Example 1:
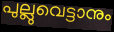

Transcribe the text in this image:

പുല്ലുവെട്ടാനും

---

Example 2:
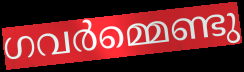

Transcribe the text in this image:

ഗവർമ്മെണ്ടു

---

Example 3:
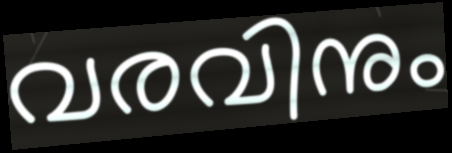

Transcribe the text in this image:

വരവിനും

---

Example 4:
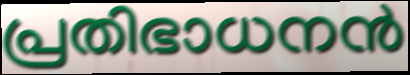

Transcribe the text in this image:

പ്രതിഭാധനൻ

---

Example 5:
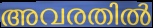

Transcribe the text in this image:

അവരതിൽ